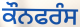
ਕੌਨਫਰੰਸ